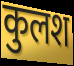
कुलश